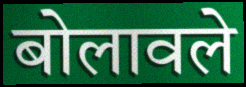
बोलावले